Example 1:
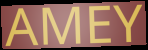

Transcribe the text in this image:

AMEY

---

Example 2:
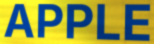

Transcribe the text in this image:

APPLE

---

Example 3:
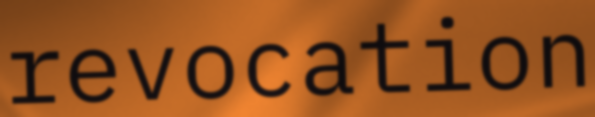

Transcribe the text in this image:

revocation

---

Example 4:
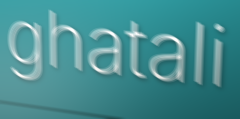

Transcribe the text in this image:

ghatali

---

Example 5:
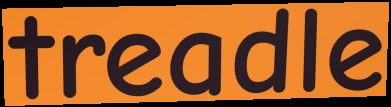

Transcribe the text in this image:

treadle